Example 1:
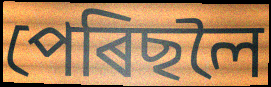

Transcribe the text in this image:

পেৰিছলৈ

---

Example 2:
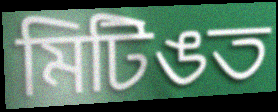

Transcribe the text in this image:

মিটিঙত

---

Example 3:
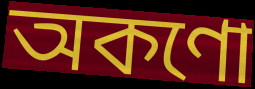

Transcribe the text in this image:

অকণো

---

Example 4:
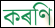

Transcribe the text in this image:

কৰণি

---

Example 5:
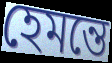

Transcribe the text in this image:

হেমন্তে